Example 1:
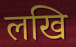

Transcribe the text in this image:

लखि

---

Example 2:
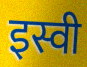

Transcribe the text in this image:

इस्वी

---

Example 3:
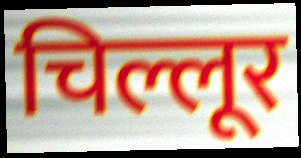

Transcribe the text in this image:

चिल्लूर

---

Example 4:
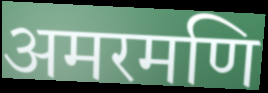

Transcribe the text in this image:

अमरमणि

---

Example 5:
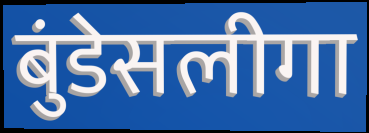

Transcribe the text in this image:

बुंडेसलीगा